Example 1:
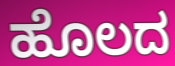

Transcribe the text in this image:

ಹೊಲದ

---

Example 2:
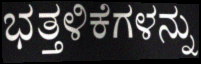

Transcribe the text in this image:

ಭತ್ತಳಿಕೆಗಳನ್ನು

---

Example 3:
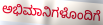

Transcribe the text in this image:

ಅಭಿಮಾನಿಗಳೊಂದಿಗೆ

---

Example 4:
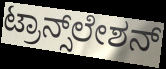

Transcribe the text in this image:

ಟ್ರಾನ್ಸ್‌ಲೇಶನ್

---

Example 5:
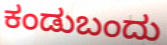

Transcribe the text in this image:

ಕಂಡುಬಂದು